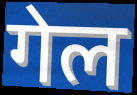
गेल